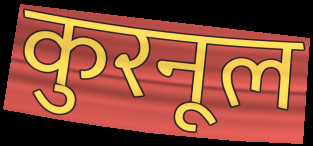
कुरनूल